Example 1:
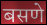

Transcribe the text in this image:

बसणे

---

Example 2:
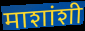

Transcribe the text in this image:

माशांशी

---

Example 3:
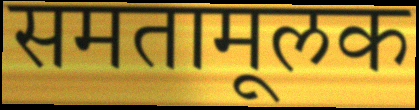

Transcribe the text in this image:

समतामूलक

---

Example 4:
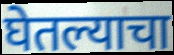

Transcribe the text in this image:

घेतल्याचा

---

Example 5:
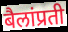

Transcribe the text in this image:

बैलांप्रती